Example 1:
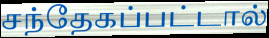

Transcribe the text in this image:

சந்தேகப்பட்டால்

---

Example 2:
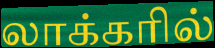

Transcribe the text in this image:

லாக்கரில்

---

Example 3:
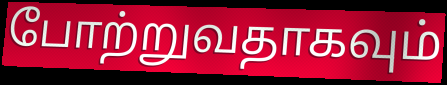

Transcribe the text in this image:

போற்றுவதாகவும்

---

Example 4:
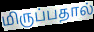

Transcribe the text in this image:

மிருப்பதால்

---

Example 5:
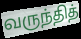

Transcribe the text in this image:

வருந்தித்